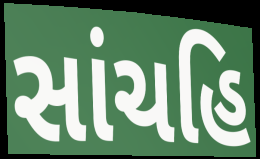
સાંચહિ